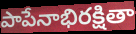
పాపేనాభిరక్షితా